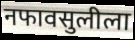
नफावसुलीला